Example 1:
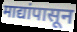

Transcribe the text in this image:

माद्यांपासून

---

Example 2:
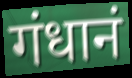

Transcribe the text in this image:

गंधानं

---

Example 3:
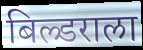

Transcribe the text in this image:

बिल्डराला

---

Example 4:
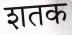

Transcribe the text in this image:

शतक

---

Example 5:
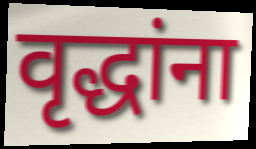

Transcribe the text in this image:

वृद्धांना